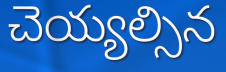
చెయ్యల్సిన